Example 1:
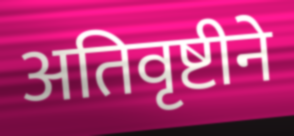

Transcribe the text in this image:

अतिवृष्टीने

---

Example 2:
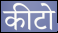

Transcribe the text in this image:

कीटो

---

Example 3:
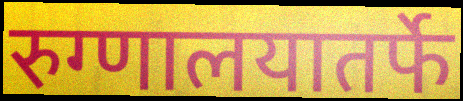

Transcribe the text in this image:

रुग्णालयातर्फे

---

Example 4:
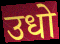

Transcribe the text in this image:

उधो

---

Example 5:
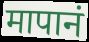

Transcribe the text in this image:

मापानं